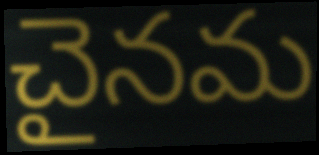
చైనమ